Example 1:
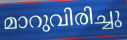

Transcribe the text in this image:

മാറുവിരിച്ചു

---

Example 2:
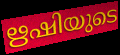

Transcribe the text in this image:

ഋഷിയുടെ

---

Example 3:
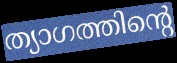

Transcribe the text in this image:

ത്യാഗത്തിന്റെ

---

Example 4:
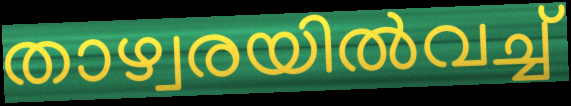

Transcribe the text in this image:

താഴ്വരയിൽവച്ച്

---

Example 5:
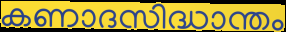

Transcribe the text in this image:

കണാദസിദ്ധാന്തം